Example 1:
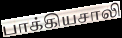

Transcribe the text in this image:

பாக்கியசாலி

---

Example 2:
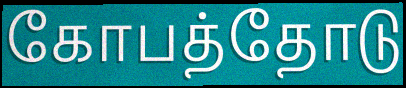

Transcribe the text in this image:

கோபத்தோடு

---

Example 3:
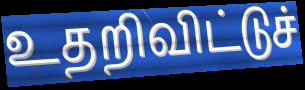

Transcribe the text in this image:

உதறிவிட்டுச்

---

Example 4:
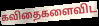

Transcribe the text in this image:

கவிதைகளைவிட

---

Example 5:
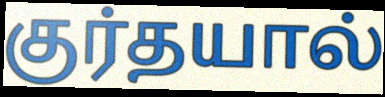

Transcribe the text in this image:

குர்தயால்